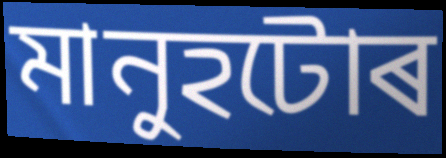
মানুহটোৰ